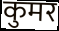
कुमर